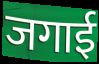
जगाई